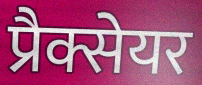
प्रैक्सेयर